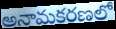
అనామకరణలో